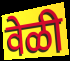
वेळी